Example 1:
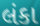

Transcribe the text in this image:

લંકા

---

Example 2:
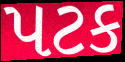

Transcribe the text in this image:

પટક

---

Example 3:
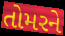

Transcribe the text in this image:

તોમરને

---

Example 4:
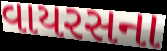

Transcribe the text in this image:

વાયરસના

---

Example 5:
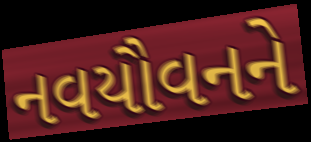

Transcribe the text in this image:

નવયૌવનને